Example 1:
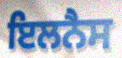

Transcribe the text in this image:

ਇਲਨੈਸ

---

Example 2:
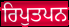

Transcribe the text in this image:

ਰਿਪੁਤਪਨ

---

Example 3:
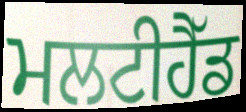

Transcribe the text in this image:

ਮਲਟੀਹੈੱਡ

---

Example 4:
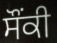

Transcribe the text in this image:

ਸੌਂਕੀ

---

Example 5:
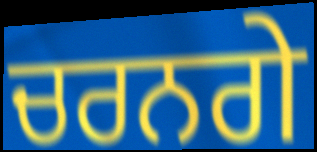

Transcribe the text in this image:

ਚਰਨਗੇ